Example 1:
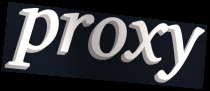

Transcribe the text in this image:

proxy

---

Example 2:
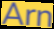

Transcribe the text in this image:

Arn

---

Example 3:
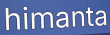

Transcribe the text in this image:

himanta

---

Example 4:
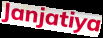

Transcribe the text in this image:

Janjatiya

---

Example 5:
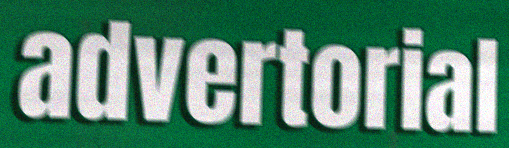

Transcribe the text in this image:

advertorial